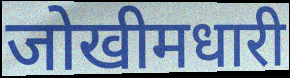
जोखीमधारी